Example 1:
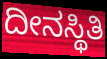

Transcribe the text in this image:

ದೀನಸ್ಥಿತಿ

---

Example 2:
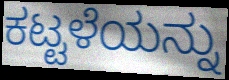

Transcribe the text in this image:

ಕಟ್ಟಳೆಯನ್ನು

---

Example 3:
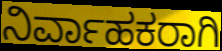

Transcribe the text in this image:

ನಿರ್ವಾಹಕರಾಗಿ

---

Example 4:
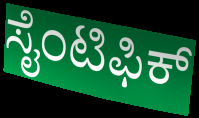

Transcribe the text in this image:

ಸೈಂಟಿಫಿಕ್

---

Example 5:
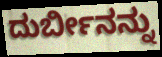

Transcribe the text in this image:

ದುರ್ಬೀನನ್ನು